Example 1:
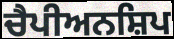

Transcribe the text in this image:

ਚੈਪੀਅਨਸ਼ਿਪ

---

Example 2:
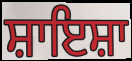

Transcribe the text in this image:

ਸ਼ਾਇਸ਼ਾ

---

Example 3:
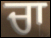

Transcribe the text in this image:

ਚਾ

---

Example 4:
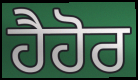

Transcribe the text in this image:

ਹੈਹੋਰ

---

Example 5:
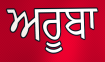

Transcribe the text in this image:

ਅਰੂਬਾ